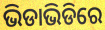
ଭିଡାଭିଡିରେ